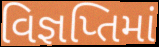
વિજ્ઞપ્તિમાં